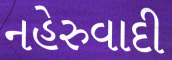
નહેરુવાદી